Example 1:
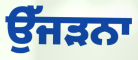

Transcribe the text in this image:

ਉੱਜੜਨਾ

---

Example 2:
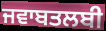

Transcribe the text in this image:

ਜਵਾਬਤਲਬੀ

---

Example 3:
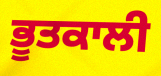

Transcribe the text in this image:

ਭੂਤਕਾਲੀ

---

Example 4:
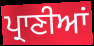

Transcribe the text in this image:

ਪ੍ਰਾਣੀਆਂ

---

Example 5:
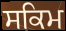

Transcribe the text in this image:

ਸਕਿਮ